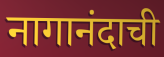
नागानंदाची